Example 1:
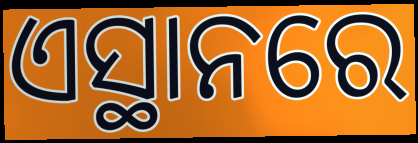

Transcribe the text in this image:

ଏସ୍ଥାନରେ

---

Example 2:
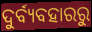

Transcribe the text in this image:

ଦୁର୍ବ୍ୟବହାରରୁ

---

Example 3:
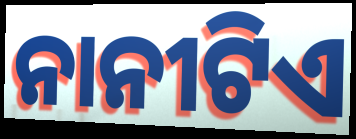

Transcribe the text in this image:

ନାନୀଟିଏ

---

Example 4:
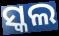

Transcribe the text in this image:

ସ୍କଲ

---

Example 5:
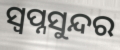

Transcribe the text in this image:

ସ୍ୱପ୍ନସୁନ୍ଦର